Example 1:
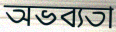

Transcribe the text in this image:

অভব্যতা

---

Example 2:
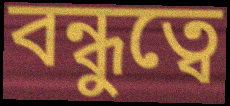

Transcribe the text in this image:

বন্ধুত্বে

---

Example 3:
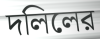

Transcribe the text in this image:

দলিলের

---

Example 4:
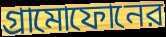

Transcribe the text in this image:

গ্রামোফোনের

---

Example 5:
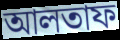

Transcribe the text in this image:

আলতাফ